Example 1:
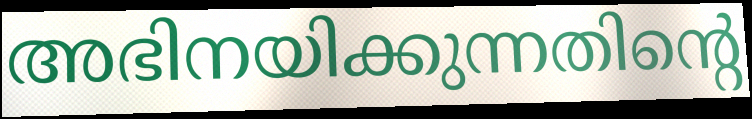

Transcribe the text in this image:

അഭിനയിക്കുന്നതിന്റെ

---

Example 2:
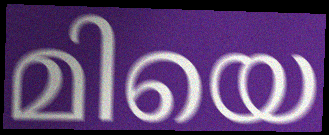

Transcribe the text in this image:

മിയെ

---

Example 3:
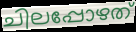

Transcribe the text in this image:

ചിലപ്പോഴത്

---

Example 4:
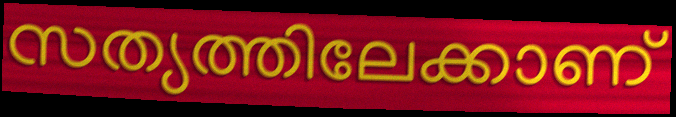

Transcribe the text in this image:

സത്യത്തിലേക്കാണ്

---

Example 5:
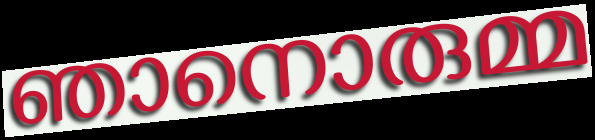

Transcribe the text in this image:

ഞാനൊരുമ്മ